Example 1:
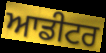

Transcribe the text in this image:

ਆਡੀਟਰ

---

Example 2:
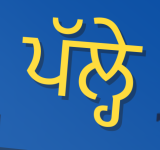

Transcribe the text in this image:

ਪੱਲ੍ਹੇ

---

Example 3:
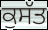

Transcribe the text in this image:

ਕੁਸੱਤ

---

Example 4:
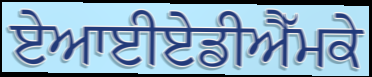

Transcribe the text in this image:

ਏਆਈਏਡੀਐੱਮਕੇ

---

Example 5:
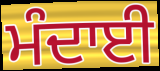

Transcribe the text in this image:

ਮੰਦਾਈ